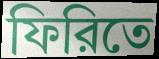
ফিরিতে